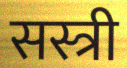
सस्त्री